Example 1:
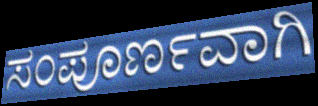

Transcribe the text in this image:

ಸಂಪೂರ್ಣವಾಗಿ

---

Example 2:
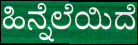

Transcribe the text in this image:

ಹಿನ್ನೆಲೆಯಿದೆ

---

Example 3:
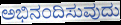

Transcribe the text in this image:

ಅಭಿನಂದಿಸುವುದು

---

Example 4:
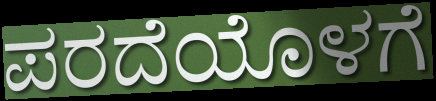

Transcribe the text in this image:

ಪರದೆಯೊಳಗೆ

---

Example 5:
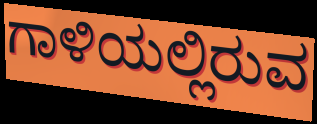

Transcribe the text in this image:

ಗಾಳಿಯಲ್ಲಿರುವ